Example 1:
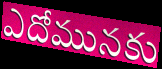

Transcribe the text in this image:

ఎదోమునకు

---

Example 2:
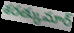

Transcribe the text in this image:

శరత్కుమార్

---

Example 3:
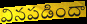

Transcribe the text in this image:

వినపడిందా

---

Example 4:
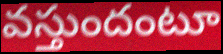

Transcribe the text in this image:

వస్తుందంటూ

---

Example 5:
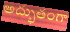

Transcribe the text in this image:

అద్భుతంగా